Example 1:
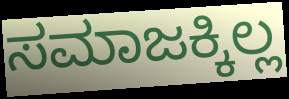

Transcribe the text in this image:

ಸಮಾಜಕ್ಕಿಲ್ಲ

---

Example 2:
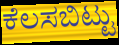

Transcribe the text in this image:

ಕೆಲಸಬಿಟ್ಟು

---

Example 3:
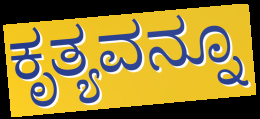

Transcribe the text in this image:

ಕೃತ್ಯವನ್ನೂ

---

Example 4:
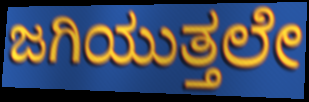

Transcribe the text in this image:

ಜಗಿಯುತ್ತಲೇ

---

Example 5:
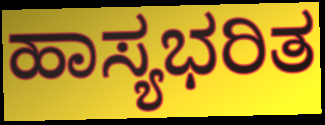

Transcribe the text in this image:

ಹಾಸ್ಯಭರಿತ